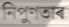
নিপুণতাৰ